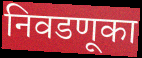
निवडणूका